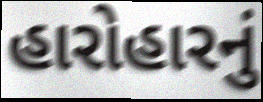
હારોહારનું